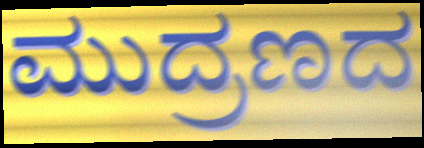
ಮುದ್ರಣದ